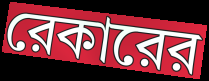
রেকারের